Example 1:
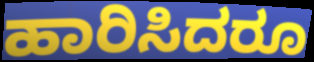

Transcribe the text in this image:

ಹಾರಿಸಿದರೂ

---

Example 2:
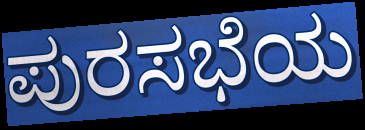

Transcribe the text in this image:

ಪುರಸಭೆಯ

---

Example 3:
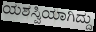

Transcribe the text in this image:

ಯಶಸ್ವಿಯಾಗಿದ್ದು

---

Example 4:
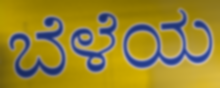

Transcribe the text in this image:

ಬೆಳೆಯ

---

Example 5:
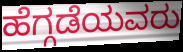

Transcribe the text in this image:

ಹೆಗ್ಗಡೆಯವರು